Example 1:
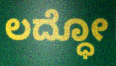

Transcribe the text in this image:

ಲದ್ಧೋ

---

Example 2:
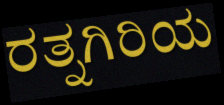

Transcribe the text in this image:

ರತ್ನಗಿರಿಯ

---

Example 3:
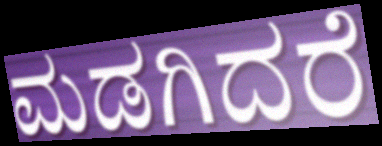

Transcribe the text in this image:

ಮಡಗಿದರೆ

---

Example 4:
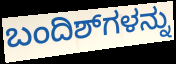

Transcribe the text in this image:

ಬಂದಿಶ್‌ಗಳನ್ನು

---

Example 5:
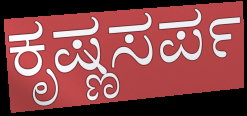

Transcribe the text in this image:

ಕೃಷ್ಣಸರ್ಪ